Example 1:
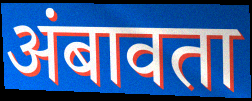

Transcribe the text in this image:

अंबावता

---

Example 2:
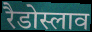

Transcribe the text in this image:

रैडोस्लाव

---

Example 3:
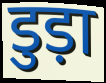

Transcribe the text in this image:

डुड़ा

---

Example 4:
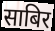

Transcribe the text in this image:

साबिर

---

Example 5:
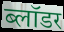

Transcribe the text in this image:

ब्लॉडर